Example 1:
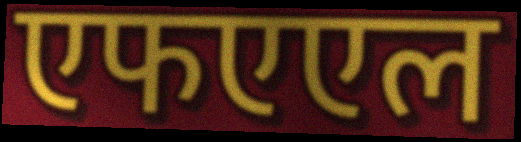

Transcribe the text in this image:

एफएएल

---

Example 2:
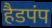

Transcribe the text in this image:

हैडपंप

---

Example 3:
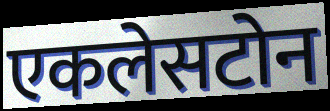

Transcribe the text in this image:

एकलेसटोन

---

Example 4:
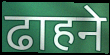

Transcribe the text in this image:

ढाहने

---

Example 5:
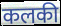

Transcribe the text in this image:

कलकी